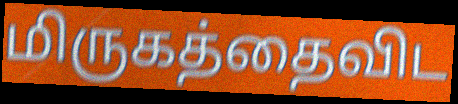
மிருகத்தைவிட